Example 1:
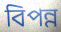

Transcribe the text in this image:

বিপন্ন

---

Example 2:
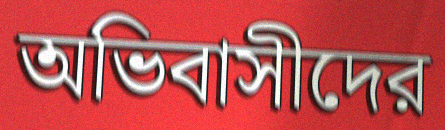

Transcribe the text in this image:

অভিবাসীদের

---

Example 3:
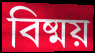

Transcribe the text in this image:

বিষ্ময়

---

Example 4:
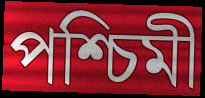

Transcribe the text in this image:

পশ্চিমী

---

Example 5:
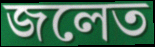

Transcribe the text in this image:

জলেত